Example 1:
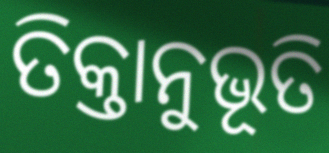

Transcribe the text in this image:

ତିକ୍ତାନୁଭୂତି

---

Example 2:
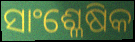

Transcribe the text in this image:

ସାଂଶ୍ଳେଷିକ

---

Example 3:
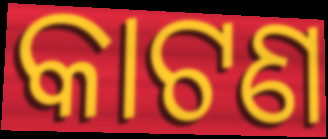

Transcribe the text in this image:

କାଟଣ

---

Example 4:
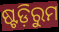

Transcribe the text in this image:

ଷ୍ଟଡ଼ିରୁମ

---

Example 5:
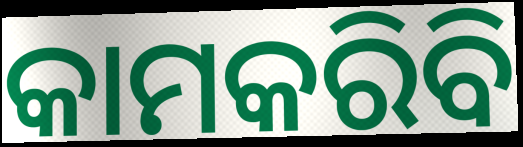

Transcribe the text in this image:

କାମକରିବି